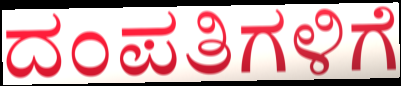
ದಂಪತಿಗಳಿಗೆ